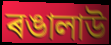
ৰঙালাউ